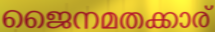
ജൈനമതക്കാര്